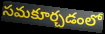
సమకూర్చడంలో